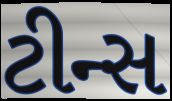
ટીન્સ